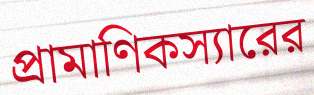
প্রামাণিকস্যারের